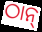
ଠାନ୍